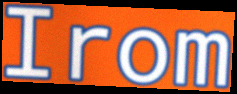
Irom